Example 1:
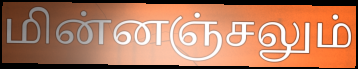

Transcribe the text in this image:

மின்னஞ்சலும்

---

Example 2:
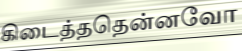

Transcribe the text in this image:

கிடைத்ததென்னவோ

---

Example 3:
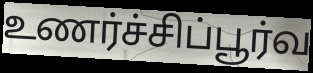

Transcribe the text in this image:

உணர்ச்சிப்பூர்வ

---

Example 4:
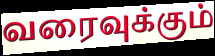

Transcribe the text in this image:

வரைவுக்கும்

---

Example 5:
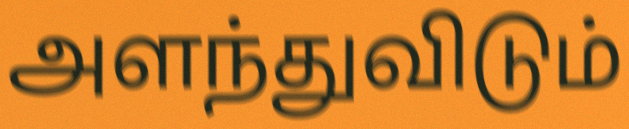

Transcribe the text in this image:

அளந்துவிடும்